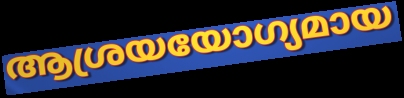
ആശ്രയയോഗ്യമായ